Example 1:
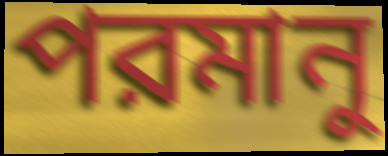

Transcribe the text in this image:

পরমানু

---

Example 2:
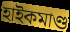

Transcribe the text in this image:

হাইকমাণ্ড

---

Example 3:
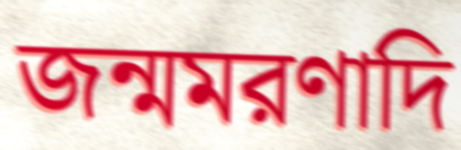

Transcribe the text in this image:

জন্মমরণাদি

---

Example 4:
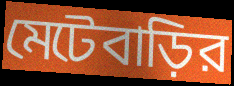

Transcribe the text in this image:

মেটেবাড়ির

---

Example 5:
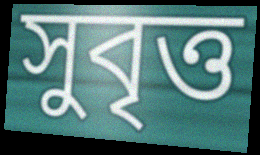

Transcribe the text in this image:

সুবৃত্ত